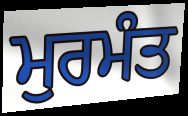
ਮੁਰਮੰਤ